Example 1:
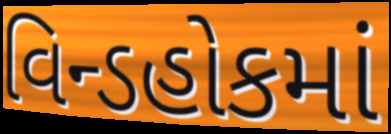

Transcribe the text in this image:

વિન્ડહોકમાં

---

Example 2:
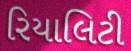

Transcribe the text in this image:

રિયાલિટી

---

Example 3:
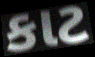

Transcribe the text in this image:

કાટ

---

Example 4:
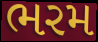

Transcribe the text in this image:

ભરમ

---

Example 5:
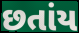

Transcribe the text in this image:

છતાંય